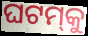
ଘଟମ୍‌କୁ